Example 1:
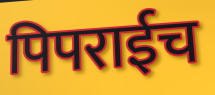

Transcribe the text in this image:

पिपराईच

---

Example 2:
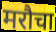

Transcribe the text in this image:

मरौचा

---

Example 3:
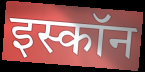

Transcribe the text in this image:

इस्‍कॉन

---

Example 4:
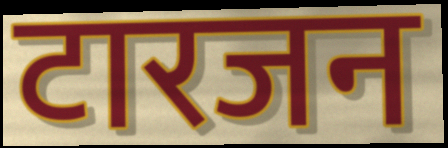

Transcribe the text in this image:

टारजन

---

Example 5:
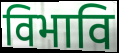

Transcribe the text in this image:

विभावि